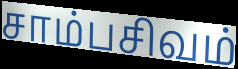
சாம்பசிவம்